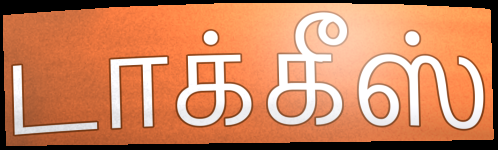
டாக்கீஸ்